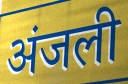
अंजली